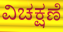
ವಿಚಕ್ಷಣೆ